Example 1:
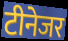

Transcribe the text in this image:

टीनेजर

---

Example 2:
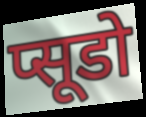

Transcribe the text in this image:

प्सूडो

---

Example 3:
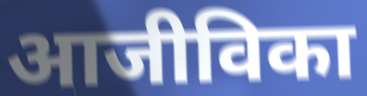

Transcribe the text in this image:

आजीविका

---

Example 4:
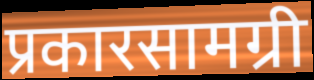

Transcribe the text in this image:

प्रकारसामग्री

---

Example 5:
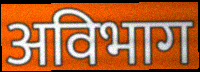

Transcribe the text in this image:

अविभाग